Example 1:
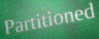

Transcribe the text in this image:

Partitioned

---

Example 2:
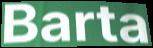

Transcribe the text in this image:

Barta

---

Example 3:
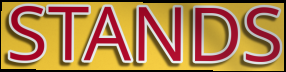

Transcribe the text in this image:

STANDS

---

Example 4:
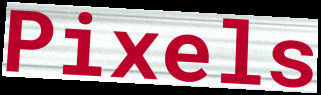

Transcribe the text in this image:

Pixels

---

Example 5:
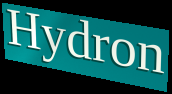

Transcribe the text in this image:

Hydron